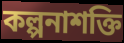
কল্পনাশক্তি